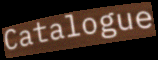
Catalogue